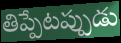
తిప్పేటప్పుడు